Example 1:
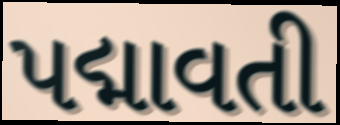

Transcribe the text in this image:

પદ્માવતી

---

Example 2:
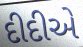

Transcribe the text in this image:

દીદીએ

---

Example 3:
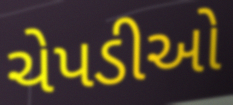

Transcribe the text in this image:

ચેપડીઓ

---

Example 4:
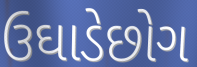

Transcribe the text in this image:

ઉઘાડેછોગ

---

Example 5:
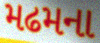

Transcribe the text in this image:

મઢમના